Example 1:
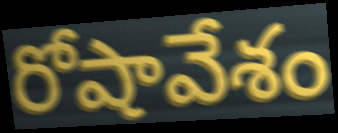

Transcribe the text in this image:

రోషావేశం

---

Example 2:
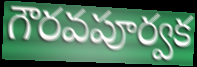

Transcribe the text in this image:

గౌరవపూర్వక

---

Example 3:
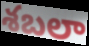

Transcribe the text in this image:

శబలా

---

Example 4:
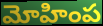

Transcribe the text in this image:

మోహింప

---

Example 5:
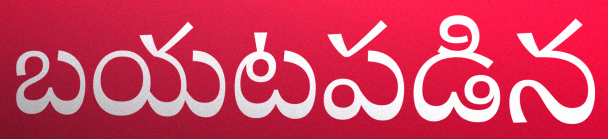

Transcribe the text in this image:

బయటపడిన